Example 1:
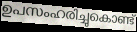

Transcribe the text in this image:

ഉപസംഹരിച്ചുകൊണ്ട്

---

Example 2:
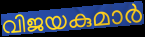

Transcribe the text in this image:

വിജയകുമാർ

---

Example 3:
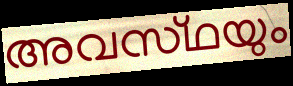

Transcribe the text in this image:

അവസ്‌ഥയും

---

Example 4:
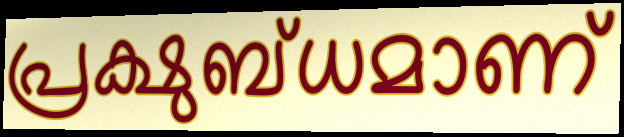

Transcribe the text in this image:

പ്രക്ഷുബ്ധമാണ്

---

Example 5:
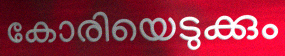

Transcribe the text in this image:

കോരിയെടുക്കും